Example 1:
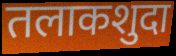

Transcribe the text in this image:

तलाकशुदा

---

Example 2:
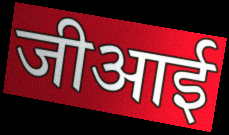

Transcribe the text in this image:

जीआई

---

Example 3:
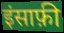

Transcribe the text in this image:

इंसाफ़ी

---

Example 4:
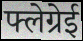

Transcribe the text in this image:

फ्लेग्रेई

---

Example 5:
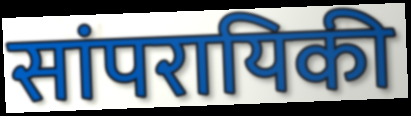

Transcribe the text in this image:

सांपरायिकी